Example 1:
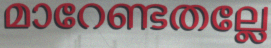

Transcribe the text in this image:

മാറേണ്ടതല്ലേ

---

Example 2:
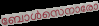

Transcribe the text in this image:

ബോൾസെനാരോ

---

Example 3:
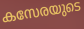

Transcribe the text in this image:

കസേരയുടെ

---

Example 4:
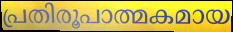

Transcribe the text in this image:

പ്രതിരൂപാത്മകമായ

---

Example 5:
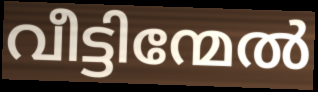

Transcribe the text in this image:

വീട്ടിന്മേൽ